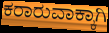
ಕರಾರುವಾಕ್ಕಾಗಿ